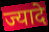
ज्यादे